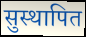
सुस्थापित